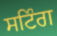
ਸਟਿੰਗ